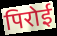
पिरोई